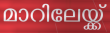
മാറിലേയ്ക്ക്